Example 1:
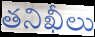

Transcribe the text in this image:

తనిఖీలు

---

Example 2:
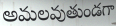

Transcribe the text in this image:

అమలవుతుండగా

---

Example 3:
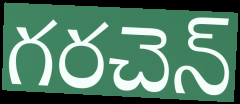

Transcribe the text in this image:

గరచెన్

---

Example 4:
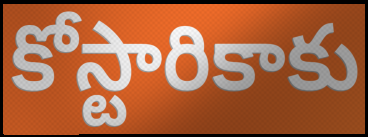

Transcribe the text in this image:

కోస్టారికాకు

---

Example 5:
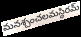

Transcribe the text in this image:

మనశ్చంచలమస్థిరమ్